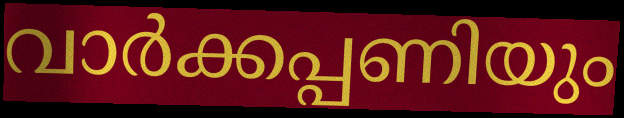
വാർക്കപ്പണിയും